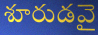
శూరుడవై